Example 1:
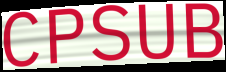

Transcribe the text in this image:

CPSUB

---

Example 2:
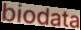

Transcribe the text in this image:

biodata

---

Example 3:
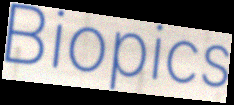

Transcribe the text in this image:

Biopics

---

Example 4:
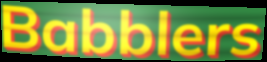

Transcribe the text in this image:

Babblers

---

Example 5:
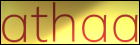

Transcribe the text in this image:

athaa